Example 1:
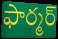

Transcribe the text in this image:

ఫార్మర్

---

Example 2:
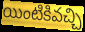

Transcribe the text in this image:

యింటికివచ్చి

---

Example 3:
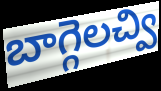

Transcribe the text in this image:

బాగ్గెలచ్వి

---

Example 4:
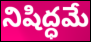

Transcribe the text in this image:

నిషిద్ధమే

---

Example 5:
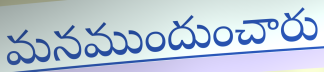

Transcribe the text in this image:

మనముందుంచారు